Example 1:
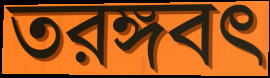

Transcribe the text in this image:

তরঙ্গবৎ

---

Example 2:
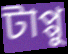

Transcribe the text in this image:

টাপ্পু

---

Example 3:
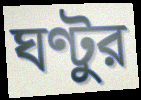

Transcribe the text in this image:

ঘণ্টুর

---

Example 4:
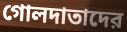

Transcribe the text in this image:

গোলদাতাদের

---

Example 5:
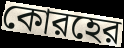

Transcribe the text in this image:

কোরহের